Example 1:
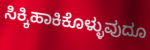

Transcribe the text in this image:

ಸಿಕ್ಕಿಹಾಕಿಕೊಳ್ಳುವುದೂ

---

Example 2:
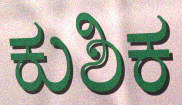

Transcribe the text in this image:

ಕುಶಿಕ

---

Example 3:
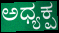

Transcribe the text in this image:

ಅಧ್ಯಕ್ಪ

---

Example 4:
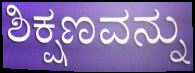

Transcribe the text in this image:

ಶಿಕ್ಷಣವನ್ನು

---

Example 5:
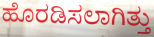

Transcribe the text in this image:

ಹೊರಡಿಸಲಾಗಿತ್ತು